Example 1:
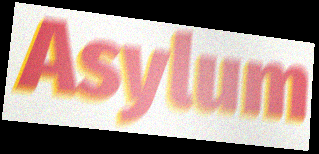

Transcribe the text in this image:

Asylum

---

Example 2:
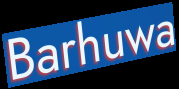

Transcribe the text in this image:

Barhuwa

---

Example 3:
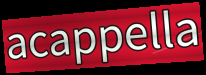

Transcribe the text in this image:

acappella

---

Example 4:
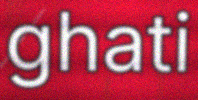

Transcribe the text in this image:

ghati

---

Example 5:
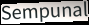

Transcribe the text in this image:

Sempunal